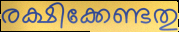
രക്ഷിക്കേണ്ടതു